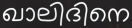
ഖാലിദിനെ